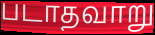
படாதவாறு